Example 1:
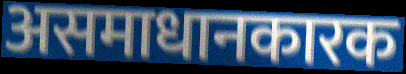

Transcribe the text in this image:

असमाधानकारक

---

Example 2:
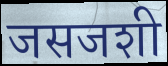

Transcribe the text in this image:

जसजशी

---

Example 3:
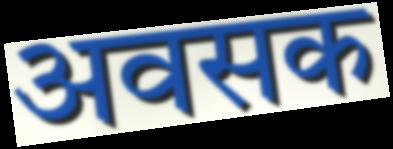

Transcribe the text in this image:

अवसक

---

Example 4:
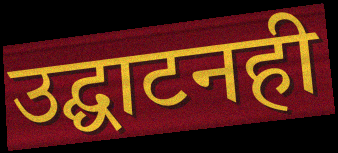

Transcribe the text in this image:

उद्घाटनही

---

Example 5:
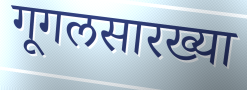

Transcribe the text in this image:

गूगलसारख्या